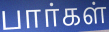
பார்கள்